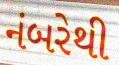
નંબરેથી